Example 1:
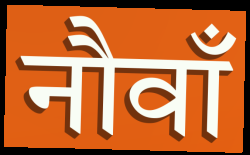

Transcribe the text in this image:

नौवाँ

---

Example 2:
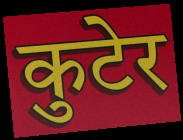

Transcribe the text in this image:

कुटेर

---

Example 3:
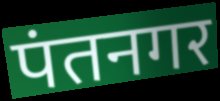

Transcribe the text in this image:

पंतनगर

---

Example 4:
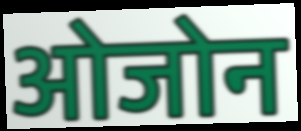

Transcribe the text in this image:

ओजोन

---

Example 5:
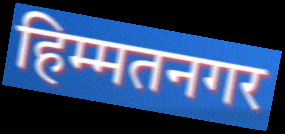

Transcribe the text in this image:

हिम्‍मतनगर